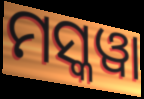
ମସ୍କୱା